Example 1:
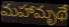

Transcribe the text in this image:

మహామృథే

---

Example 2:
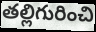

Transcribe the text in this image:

తల్లిగురించి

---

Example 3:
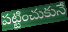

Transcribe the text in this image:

పట్టించుకునే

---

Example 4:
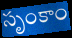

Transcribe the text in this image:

సృంకాం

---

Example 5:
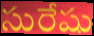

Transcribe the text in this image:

సురేషు